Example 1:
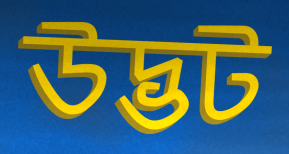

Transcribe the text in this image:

উদ্ভট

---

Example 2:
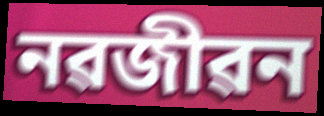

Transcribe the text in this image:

নৱজীৱন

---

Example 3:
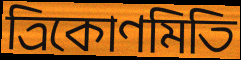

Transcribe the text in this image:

ত্ৰিকোণমিতি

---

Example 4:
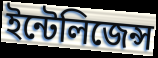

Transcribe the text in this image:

ইন্টেলিজেন্স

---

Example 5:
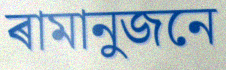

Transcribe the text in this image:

ৰামানুজনে